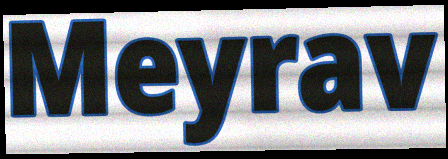
Meyrav